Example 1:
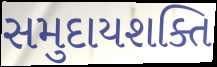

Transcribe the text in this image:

સમુદાયશક્તિ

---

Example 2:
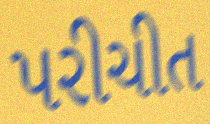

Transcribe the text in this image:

પરીચીત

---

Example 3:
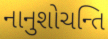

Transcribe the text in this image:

નાનુશોચન્તિ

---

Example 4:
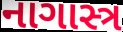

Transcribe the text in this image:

નાગાસ્ત્ર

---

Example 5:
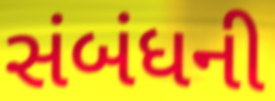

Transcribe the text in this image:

સંબંધની